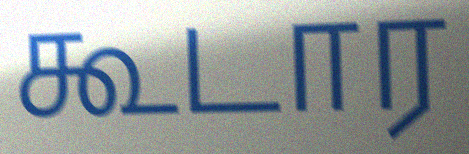
கூடார